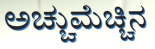
ಅಚ್ಚುಮೆಚ್ಚಿನ